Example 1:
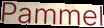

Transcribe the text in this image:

Pammel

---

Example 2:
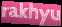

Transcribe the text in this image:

rakhyu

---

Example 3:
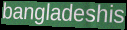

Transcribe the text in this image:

bangladeshis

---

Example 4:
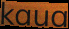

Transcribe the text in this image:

kaua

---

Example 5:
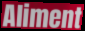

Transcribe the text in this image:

Aliment